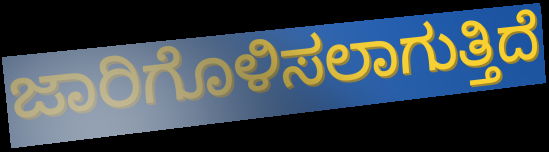
ಜಾರಿಗೊಳಿಸಲಾಗುತ್ತಿದೆ